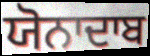
ਯੋਨਾਦਾਬ